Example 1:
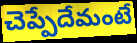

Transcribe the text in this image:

చెప్పేదేమంటే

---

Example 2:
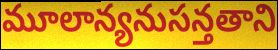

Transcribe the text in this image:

మూలాన్యనుసన్తతాని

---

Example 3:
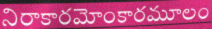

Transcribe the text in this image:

నిరాకారమోంకారమూలం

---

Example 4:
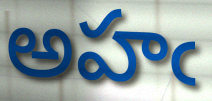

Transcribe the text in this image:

అహఁ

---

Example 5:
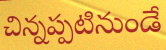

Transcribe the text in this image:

చిన్నప్పటినుండే